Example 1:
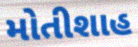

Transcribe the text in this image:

મોતીશાહ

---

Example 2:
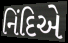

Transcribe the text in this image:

નિંદિએ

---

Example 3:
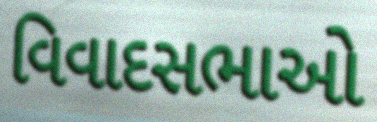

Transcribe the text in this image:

વિવાદસભાઓ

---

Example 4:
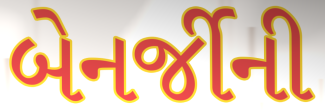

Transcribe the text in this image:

બેનર્જીની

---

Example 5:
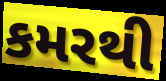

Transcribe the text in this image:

કમરથી